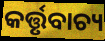
କର୍ତ୍ତୃବାଚ୍ୟ